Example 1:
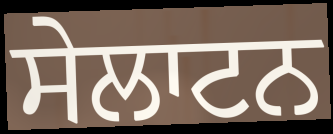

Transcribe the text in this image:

ਸੇਲਾਟਨ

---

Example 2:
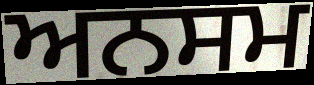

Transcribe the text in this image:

ਅਨਸਮ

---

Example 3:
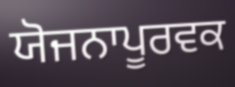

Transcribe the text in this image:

ਯੋਜਨਾਪੂਰਵਕ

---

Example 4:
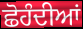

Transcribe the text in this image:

ਛੋਹੰਦੀਆਂ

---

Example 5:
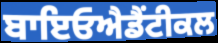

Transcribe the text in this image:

ਬਾਇਓਐਡੈਂਟੀਕਲ